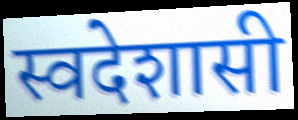
स्वदेशासी